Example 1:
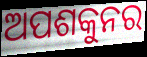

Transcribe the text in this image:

ଅପଶକୁନର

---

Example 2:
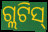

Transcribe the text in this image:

ଗ୍ଲଟିସ୍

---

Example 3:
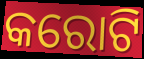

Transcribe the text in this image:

କରୋଟି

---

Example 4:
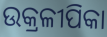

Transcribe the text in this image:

ଉକ୍ରଳୀପିକା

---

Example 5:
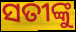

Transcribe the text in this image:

ସତୀଙ୍କୁ